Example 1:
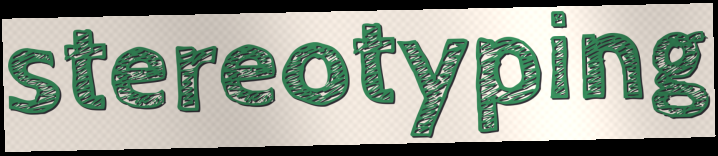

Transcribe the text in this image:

stereotyping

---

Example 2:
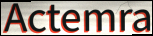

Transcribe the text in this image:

Actemra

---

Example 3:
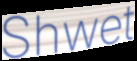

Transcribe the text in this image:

Shwet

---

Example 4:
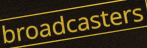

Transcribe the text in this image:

broadcasters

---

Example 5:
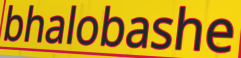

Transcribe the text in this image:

bhalobashe